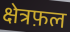
क्षेत्रफ़ल